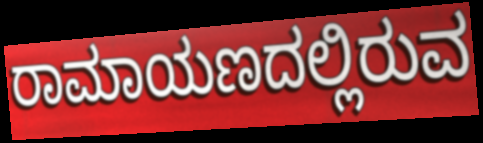
ರಾಮಾಯಣದಲ್ಲಿರುವ